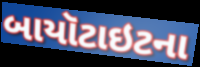
બાયૉટાઇટના